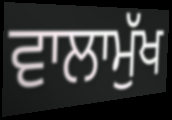
ਵਾਲਾਮੁੱਖ